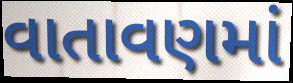
વાતાવણમાં